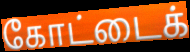
கோட்டைக்